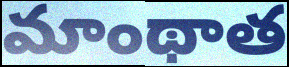
మాంథాత